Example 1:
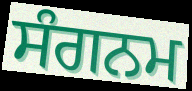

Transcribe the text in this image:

ਸੰਗਨਮ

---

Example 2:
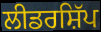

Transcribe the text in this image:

ਲੀਡਰਸ਼ਿੱਪ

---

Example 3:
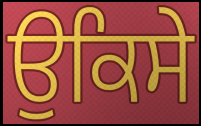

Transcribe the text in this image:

ਉਕਿਸੇ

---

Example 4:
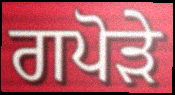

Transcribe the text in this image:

ਗਪੋੜੇ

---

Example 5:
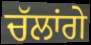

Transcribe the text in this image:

ਚੱਲਾਂਗੇ